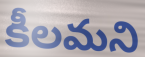
కీలమని